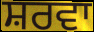
ਸ਼ਰਵਾ